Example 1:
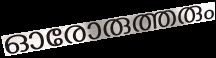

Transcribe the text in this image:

ഓരോരുത്തരും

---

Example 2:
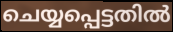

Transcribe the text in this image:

ചെയ്യപ്പെട്ടതിൽ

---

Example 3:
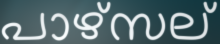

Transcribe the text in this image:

പാഴ്സല്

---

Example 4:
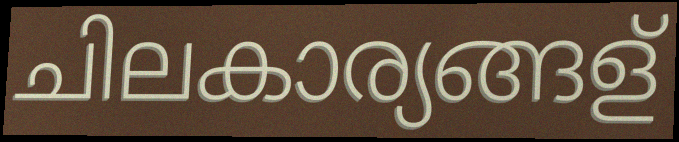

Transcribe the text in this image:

ചിലകാര്യങ്ങള്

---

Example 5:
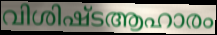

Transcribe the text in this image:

വിശിഷ്ടആഹാരം